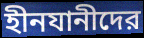
হীনযানীদের